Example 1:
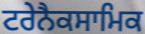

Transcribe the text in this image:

ਟਰੇਨੈਕਸਾਮਿਕ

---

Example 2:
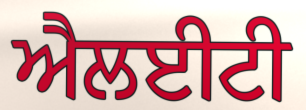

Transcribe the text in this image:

ਐਲਈਟੀ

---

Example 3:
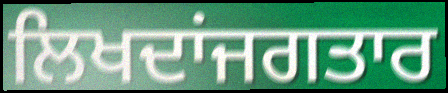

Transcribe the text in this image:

ਲਿਖਦਾਂਜਗਤਾਰ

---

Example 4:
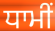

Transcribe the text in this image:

ਧਾਮੀਂ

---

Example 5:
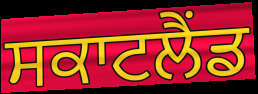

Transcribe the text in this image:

ਸਕਾਟਲੈਂਡ